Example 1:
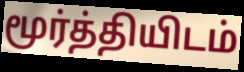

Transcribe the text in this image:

மூர்த்தியிடம்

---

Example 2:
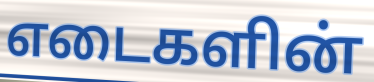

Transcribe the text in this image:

எடைகளின்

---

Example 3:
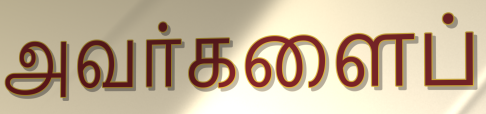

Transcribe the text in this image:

அவர்களைப்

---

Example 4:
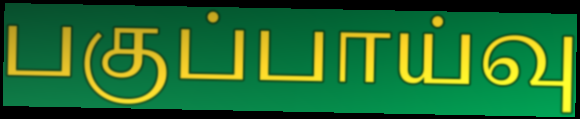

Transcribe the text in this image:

பகுப்பாய்வு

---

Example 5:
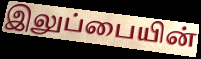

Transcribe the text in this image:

இலுப்பையின்